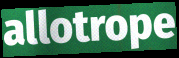
allotrope